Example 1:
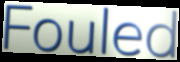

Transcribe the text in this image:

Fouled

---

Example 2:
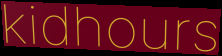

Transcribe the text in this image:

kidhours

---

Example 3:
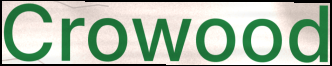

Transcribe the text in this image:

Crowood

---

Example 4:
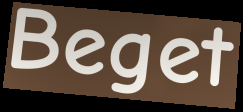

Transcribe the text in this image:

Beget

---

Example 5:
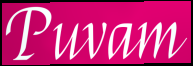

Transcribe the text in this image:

Puvam